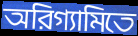
অরিগ্যামিতে